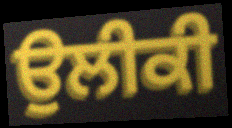
ਉਲੀਕੀ